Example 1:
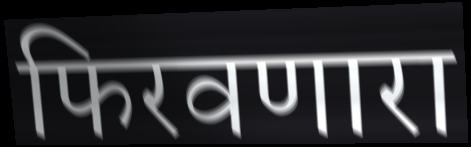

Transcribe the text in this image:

फिरवणारा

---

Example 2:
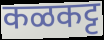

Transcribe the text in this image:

कळकट्ट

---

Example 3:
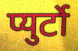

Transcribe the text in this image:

प्युर्टो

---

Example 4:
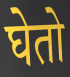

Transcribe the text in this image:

घेतो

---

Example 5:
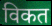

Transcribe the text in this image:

विकत